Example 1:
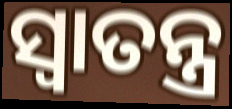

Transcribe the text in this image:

ସ୍ୱାତନ୍ତ୍ର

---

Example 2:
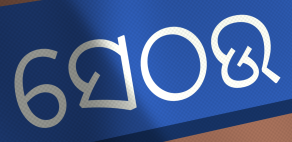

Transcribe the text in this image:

ସେଠଉ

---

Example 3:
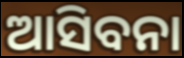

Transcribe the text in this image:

ଆସିବନା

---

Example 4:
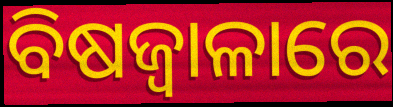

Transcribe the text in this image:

ବିଷଜ୍ୱାଳାରେ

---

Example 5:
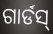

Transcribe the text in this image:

ଗାର୍ଡସ୍